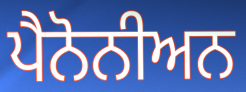
ਪੈਨੋਨੀਅਨ